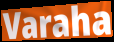
Varaha